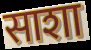
साशा